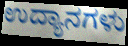
ಉದ್ಯಾನಗಳು